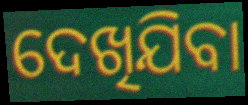
ଦେଖିଯିବା